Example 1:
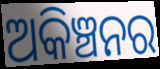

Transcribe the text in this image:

ଅକିଞ୍ଚନର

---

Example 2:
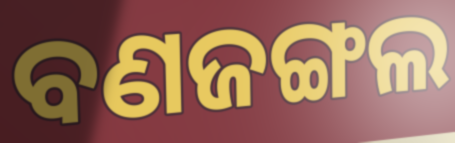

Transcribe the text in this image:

ବଣଜଙ୍ଗଲ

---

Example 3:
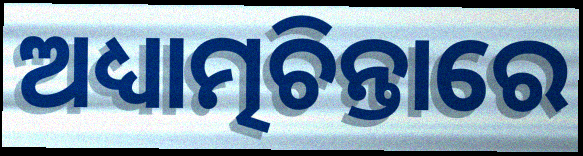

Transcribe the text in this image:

ଅଧ୍ୟାତ୍ମଚିନ୍ତାରେ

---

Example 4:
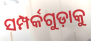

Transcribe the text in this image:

ସମ୍ପର୍କଗୁଡ଼ାକୁ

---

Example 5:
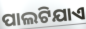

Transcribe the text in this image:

ପାଲଟିଯାଏ